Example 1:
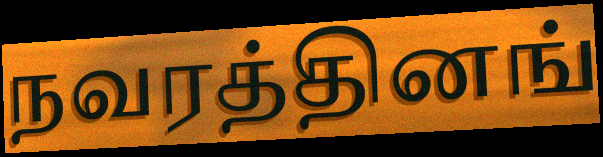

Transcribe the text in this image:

நவரத்தினங்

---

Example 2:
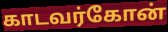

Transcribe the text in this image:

காடவர்கோன்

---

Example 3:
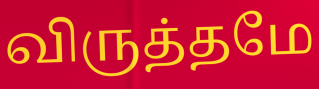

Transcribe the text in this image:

விருத்தமே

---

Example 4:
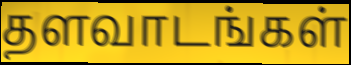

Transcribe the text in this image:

தளவாடங்கள்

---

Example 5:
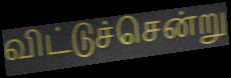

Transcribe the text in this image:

விட்டுச்சென்று